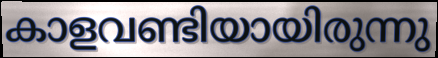
കാളവണ്ടിയായിരുന്നു